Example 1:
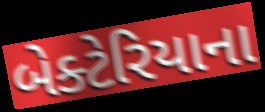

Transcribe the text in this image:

બેક્ટેરિયાના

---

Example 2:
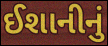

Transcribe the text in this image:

ઈશાનીનું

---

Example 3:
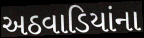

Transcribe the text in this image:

અઠવાડિયાંના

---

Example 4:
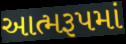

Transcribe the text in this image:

આત્મરૂપમાં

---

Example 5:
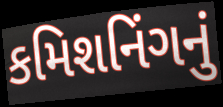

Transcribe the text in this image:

કમિશનિંગનું